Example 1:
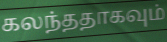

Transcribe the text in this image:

கலந்ததாகவும்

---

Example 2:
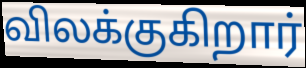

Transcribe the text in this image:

விலக்குகிறார்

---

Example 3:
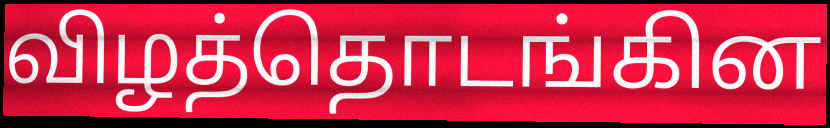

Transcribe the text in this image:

விழத்தொடங்கின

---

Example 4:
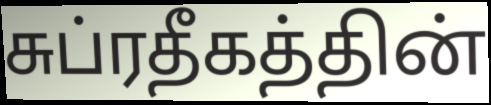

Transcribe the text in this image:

சுப்ரதீகத்தின்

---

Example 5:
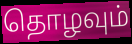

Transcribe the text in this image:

தொழவும்